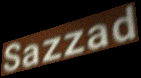
Sazzad